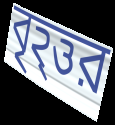
বৃহ্ত্তর